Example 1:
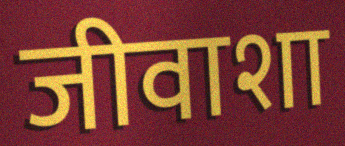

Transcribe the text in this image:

जीवाशा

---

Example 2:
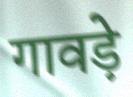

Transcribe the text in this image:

गावड़े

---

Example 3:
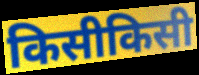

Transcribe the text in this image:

किसीकिसी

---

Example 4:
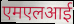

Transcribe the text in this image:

एमएलआई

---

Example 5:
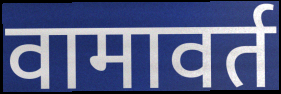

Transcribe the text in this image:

वामावर्त